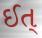
ઈત્